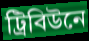
ট্রিবিউনে